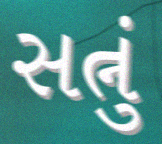
સત્નું